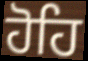
ਹੋਹਿ